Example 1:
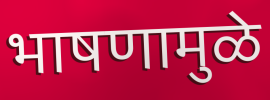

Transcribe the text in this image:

भाषणामुळे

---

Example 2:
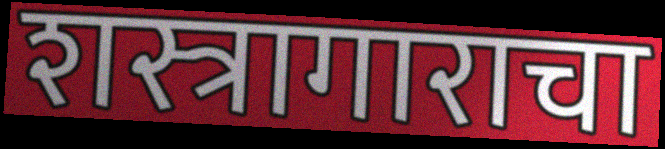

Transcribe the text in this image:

शस्त्रागाराचा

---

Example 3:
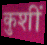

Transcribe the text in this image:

कुशीं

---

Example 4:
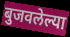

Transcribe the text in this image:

बुजवलेल्या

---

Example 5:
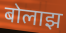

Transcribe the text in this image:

बोलाझ